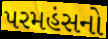
પરમહંસનો